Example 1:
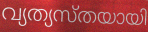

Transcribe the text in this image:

വ്യത്യസ്തയായി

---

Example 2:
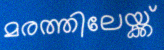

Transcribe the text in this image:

മരത്തിലേയ്ക്ക്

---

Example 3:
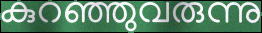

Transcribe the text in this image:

കുറഞ്ഞുവരുന്നു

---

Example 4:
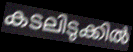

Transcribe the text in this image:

കടലിടുക്കിൽ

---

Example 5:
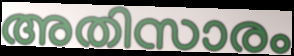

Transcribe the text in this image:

അതിസാരം